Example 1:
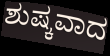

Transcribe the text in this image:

ಶುಷ್ಕವಾದ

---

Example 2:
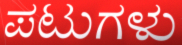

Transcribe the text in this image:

ಪಟುಗಳು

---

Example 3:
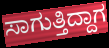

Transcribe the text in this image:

ಸಾಗುತ್ತಿದ್ದಾಗ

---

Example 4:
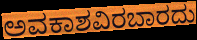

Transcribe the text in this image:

ಅವಕಾಶವಿರಬಾರದು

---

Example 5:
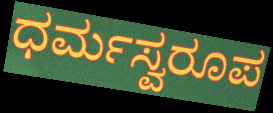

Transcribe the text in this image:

ಧರ್ಮಸ್ವರೂಪ